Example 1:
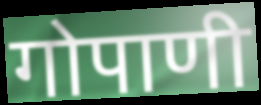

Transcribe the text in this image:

गोपाणी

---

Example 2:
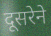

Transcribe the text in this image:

दूसरेने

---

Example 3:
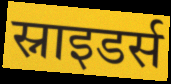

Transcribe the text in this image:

स्नाइडर्स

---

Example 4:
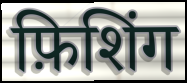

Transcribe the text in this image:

फ़िशिंग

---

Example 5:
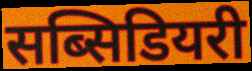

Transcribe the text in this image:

सब्सिडियरी